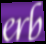
erb